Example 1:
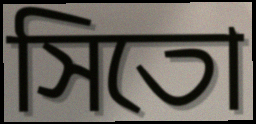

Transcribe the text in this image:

সিতো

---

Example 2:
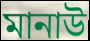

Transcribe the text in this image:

মানাউ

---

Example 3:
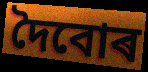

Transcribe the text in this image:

দৈবোৰ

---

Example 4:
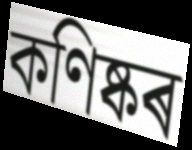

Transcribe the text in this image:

কণিষ্কৰ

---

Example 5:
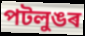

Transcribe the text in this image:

পটলুঙৰ